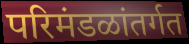
परिमंडळांतर्गत